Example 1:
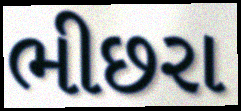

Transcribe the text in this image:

ભીછરા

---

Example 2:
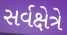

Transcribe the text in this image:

સર્વક્ષેત્રે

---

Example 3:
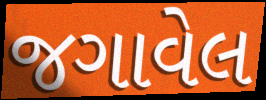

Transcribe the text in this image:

જગાવેલ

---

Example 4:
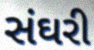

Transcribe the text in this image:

સંઘરી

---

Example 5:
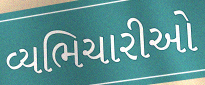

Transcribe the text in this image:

વ્યભિચારીઓ